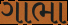
ગાભા